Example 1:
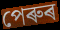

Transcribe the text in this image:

পেৰুৰ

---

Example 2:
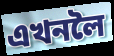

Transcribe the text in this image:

এখনলৈ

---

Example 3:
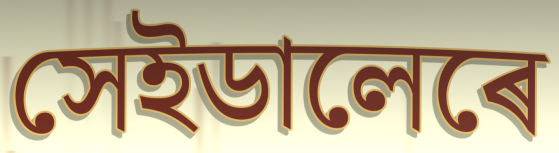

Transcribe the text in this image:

সেইডালেৰে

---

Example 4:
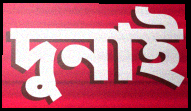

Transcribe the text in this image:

দুনাই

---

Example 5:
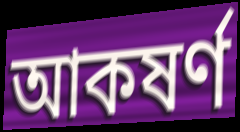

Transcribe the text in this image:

আকষৰ্ণ